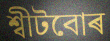
শ্বীটবোৰ